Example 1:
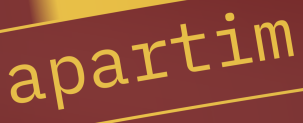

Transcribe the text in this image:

apartim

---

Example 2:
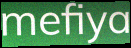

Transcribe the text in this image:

mefiya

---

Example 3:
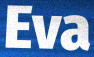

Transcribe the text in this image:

Eva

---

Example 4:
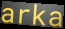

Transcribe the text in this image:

arka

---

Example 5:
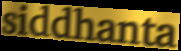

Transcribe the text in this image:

siddhanta